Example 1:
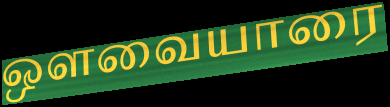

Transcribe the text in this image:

ஔவையாரை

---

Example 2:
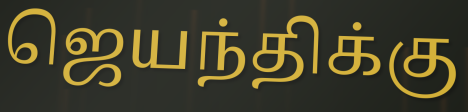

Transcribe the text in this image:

ஜெயந்திக்கு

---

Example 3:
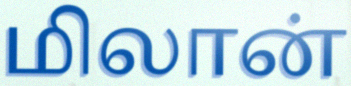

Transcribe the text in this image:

மிலான்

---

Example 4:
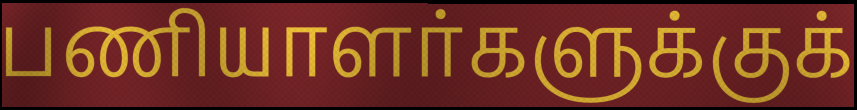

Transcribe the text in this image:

பணியாளர்களுக்குக்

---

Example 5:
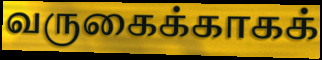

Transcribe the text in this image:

வருகைக்காகக்